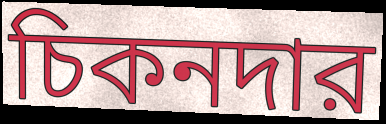
চিকনদার